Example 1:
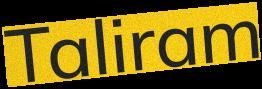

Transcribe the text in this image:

Taliram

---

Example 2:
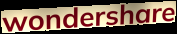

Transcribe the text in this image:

wondershare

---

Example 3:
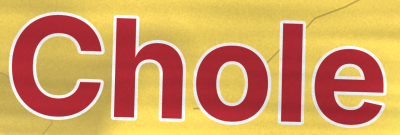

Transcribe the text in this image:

Chole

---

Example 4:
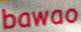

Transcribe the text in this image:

bawao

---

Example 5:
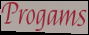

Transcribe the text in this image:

Progams